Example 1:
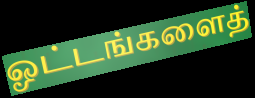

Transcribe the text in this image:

ஓட்டங்களைத்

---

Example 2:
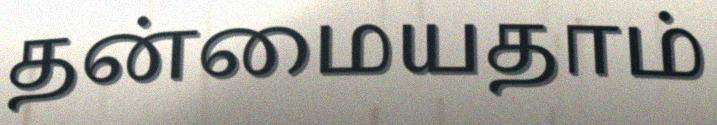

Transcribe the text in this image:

தன்மையதாம்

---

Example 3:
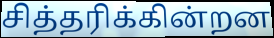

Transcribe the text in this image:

சித்தரிக்கின்றன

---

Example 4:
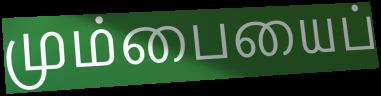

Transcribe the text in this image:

மும்பையைப்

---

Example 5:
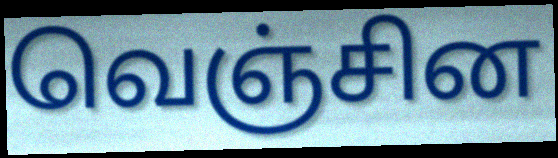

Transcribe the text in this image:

வெஞ்சின